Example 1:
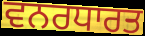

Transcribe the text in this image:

ਵਨਰਧਾਰਤ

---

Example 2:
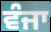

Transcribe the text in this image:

ਵੰਜਾ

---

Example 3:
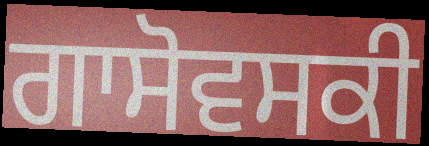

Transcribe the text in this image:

ਗਾਸੋਵਸਕੀ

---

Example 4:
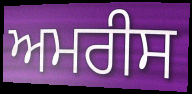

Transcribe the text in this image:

ਅਮਰੀਸ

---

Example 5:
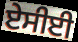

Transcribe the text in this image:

ਏਸੀਈ